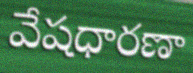
వేషధారణా